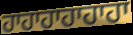
ਹਾਹਾਹਾਹਾਹਾਹਾ